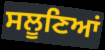
ਸਲੂਣਿਆਂ